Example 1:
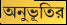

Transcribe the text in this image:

অনুভূতির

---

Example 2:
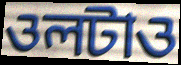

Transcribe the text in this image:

ওলটাও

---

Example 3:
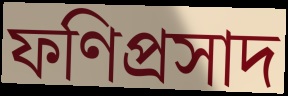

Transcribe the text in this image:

ফণিপ্রসাদ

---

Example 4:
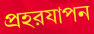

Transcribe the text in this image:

প্রহরযাপন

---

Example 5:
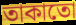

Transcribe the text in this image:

তাকাতো